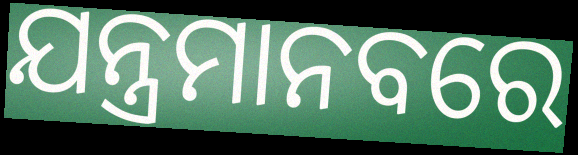
ଯନ୍ତ୍ରମାନବରେ